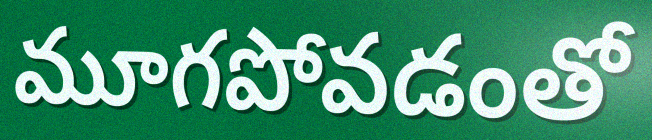
మూగపోవడంతో